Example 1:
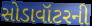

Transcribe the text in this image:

સોડાવૉટરની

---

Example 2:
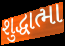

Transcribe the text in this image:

શુદ્ધાત્મા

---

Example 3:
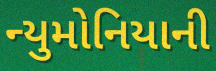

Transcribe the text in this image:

ન્યુમોનિયાની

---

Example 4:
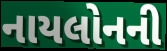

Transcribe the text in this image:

નાયલોનની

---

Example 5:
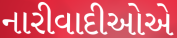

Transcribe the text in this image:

નારીવાદીઓએ